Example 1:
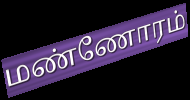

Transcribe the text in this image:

மண்ணோரம்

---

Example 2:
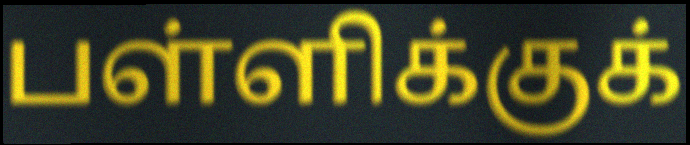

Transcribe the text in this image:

பள்ளிக்குக்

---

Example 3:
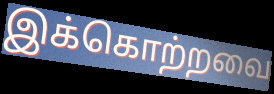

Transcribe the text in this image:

இக்கொற்றவை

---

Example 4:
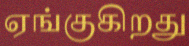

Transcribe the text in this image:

ஏங்குகிறது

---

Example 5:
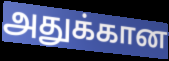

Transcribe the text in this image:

அதுக்கான